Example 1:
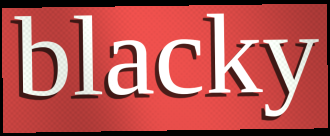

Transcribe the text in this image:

blacky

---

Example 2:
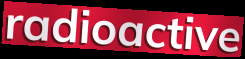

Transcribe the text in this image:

radioactive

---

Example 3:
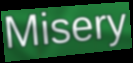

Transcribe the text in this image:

Misery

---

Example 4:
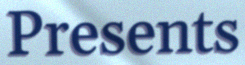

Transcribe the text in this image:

Presents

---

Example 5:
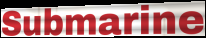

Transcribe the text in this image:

Submarine